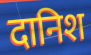
दानिश